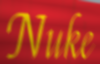
Nuke